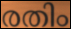
രതിം